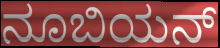
ನೂಬಿಯನ್